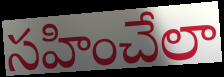
సహించేలా